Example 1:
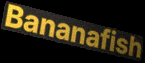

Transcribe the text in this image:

Bananafish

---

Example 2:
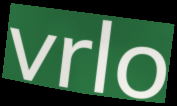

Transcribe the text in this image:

vrlo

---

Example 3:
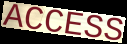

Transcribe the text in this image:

ACCESS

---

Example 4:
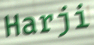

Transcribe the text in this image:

Harji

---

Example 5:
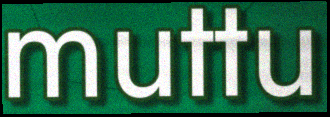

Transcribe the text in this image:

muttu